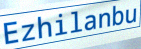
Ezhilanbu